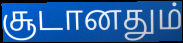
சூடானதும்